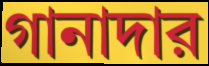
গানাদার